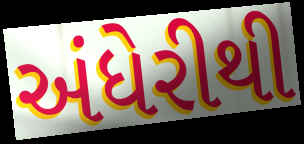
અંધેરીથી